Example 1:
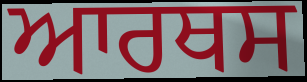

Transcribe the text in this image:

ਆਰਥਸ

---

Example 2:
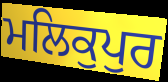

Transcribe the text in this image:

ਮਲਿਕੁਪੁਰ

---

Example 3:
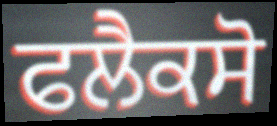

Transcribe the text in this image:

ਫਲੈਕਸੋ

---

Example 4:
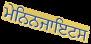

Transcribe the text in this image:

ਮੇਨਿਨਜਾਇਟਸ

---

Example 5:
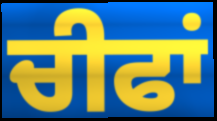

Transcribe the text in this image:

ਚੀਫਾਂ